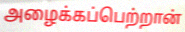
அழைக்கப்பெற்றான்